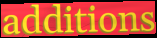
additions